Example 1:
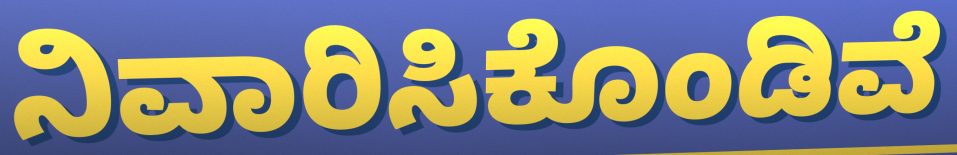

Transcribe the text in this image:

ನಿವಾರಿಸಿಕೊಂಡಿವೆ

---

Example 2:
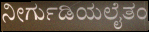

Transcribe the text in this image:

ನೀರ್ಗುಡಿಯಲೈತಂ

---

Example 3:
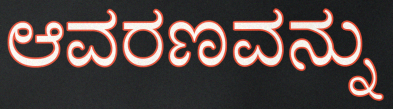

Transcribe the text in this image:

ಆವರಣವನ್ನು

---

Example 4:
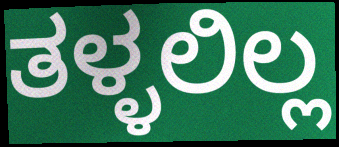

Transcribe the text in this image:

ತಳ್ಳಲಿಲ್ಲ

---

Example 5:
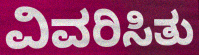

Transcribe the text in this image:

ವಿವರಿಸಿತು